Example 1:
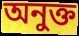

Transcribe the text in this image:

অনুক্ত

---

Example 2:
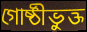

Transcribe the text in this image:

গোষ্ঠীভুক্ত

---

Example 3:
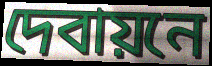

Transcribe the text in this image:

দেবায়নে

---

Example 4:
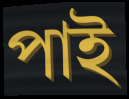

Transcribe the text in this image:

পাই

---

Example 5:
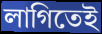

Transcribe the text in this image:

লাগিতেই